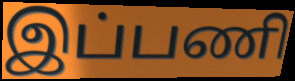
இப்பணி